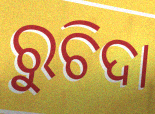
ରୁଚିଦା